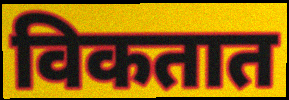
विकतात